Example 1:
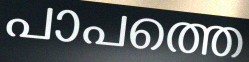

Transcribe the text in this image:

പാപത്തെ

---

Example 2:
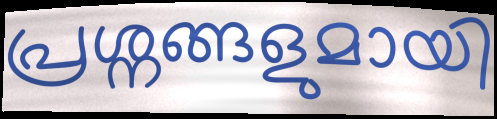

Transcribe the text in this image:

പ്രശ്നങ്ങളുമായി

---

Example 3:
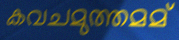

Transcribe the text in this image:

കവചമുത്തമമ്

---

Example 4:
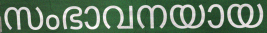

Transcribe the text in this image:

സംഭാവനയായ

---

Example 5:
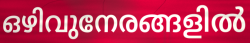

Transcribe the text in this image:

ഒഴിവുനേരങ്ങളിൽ